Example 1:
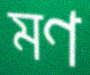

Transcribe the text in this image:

মণ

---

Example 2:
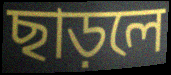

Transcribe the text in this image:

ছাড়লে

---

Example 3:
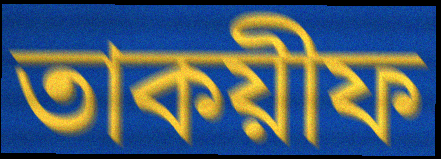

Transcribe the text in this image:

তাকয়ীফ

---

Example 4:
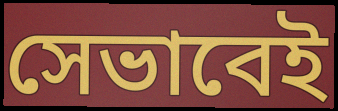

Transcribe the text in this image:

সেভাবেই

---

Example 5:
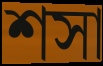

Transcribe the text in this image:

শসা